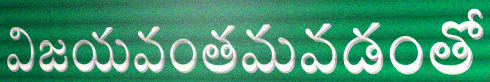
విజయవంతమవడంతో